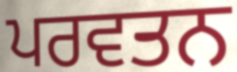
ਪਰਵਤਨ